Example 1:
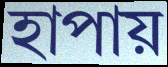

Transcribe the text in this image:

হাপায়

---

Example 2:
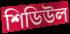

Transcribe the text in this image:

শিডিউল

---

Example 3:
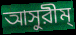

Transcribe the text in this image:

আসুরীম্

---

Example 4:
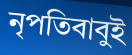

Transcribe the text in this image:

নৃপতিবাবুই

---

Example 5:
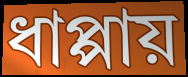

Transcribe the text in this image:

ধাপ্পায়